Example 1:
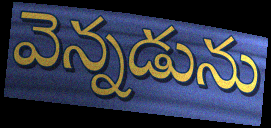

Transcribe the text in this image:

వెన్నడును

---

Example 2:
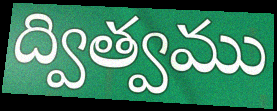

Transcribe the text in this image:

ద్విత్వము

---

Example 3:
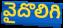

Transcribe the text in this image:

వైదొలిగి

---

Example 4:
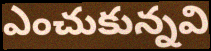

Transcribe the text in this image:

ఎంచుకున్నవి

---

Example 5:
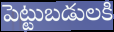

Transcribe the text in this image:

పెట్టుబడులకి